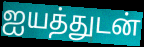
ஐயத்துடன்